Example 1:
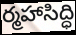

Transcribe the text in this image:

ర్మహాసిద్ధి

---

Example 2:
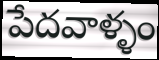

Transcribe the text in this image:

పేదవాళ్ళం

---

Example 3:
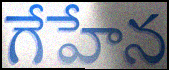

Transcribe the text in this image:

గేహేన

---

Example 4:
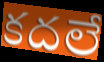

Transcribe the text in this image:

కదలే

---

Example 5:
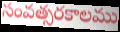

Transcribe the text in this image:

సంవత్సరకాలము